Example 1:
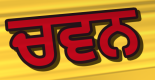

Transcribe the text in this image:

ਚਵਨ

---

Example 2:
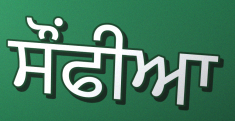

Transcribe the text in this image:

ਸੌਂਫੀਆ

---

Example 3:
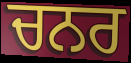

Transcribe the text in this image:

ਚਨਰ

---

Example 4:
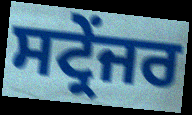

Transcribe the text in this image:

ਸਟ੍ਰੇਂਜਰ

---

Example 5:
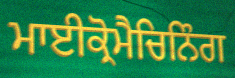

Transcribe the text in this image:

ਮਾਈਕ੍ਰੋਮੈਚਿਨਿੰਗ